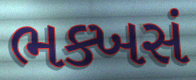
ભક્ખસં